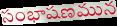
సంభాషణమున